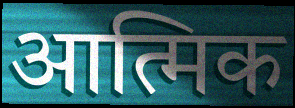
आत्मिक